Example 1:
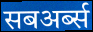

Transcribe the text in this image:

सबअर्ब्स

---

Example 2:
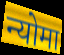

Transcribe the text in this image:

न्योमा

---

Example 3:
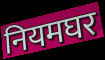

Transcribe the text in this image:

नियमघर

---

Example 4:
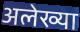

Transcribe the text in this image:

अलेख्या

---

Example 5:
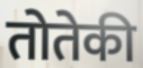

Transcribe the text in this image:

तोतेकी